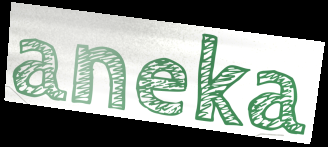
aneka